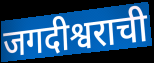
जगदीश्वराची